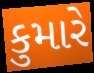
કુમારે